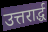
उत्तरार्द्ध